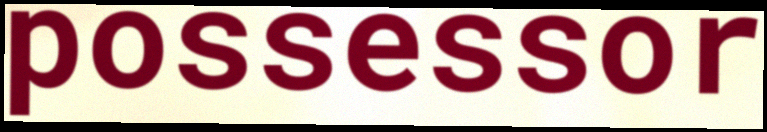
possessor